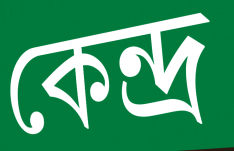
কেন্দ্র